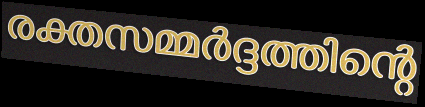
രക്തസമ്മർദ്ദത്തിന്റെ